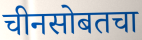
चीनसोबतचा